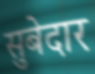
सुबेदार